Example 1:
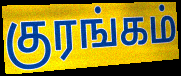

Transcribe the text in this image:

குரங்கம்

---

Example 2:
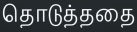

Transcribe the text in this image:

தொடுத்ததை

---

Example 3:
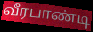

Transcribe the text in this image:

வீரபாண்டி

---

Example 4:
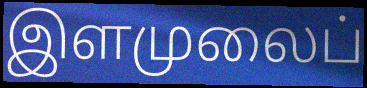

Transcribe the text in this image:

இளமுலைப்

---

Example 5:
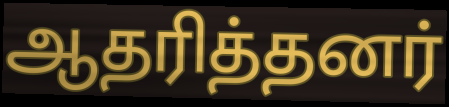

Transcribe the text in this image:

ஆதரித்தனர்